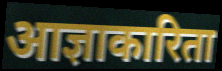
आज्ञाकारिता